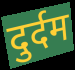
दुर्दम